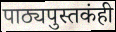
पाठ्यपुस्तकंही